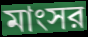
মাংসর